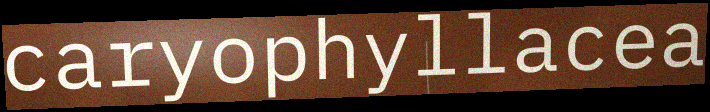
caryophyllacea